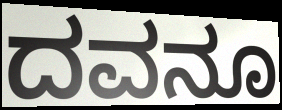
ದವನೂ